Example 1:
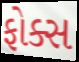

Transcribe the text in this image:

ફોક્સ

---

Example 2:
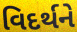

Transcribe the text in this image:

વિદર્થને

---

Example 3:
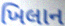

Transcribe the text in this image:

ખિલાન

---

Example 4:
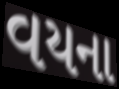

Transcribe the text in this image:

વયના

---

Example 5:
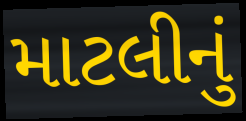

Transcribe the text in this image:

માટલીનું